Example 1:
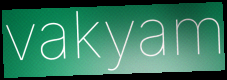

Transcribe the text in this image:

vakyam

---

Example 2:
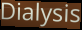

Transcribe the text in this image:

Dialysis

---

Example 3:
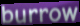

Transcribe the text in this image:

burrow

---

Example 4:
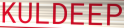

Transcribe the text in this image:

KULDEEP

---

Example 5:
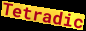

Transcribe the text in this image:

Tetradic